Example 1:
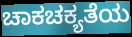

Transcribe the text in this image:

ಚಾಕಚಕ್ಯತೆಯ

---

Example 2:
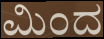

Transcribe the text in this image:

ಮಿಂದ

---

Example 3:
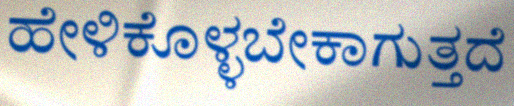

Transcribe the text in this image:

ಹೇಳಿಕೊಳ್ಳಬೇಕಾಗುತ್ತದೆ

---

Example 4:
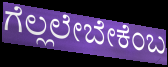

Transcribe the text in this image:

ಗೆಲ್ಲಲೇಬೇಕೆಂಬ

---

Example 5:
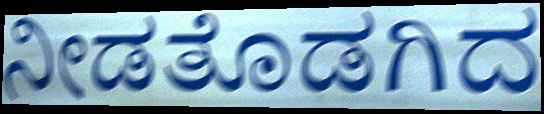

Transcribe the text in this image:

ನೀಡತೊಡಗಿದ